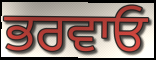
ਭਰਵਾਓ